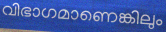
വിഭാഗമാണെങ്കിലും